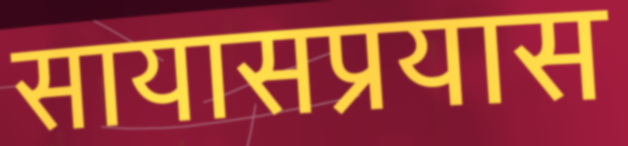
सायासप्रयास